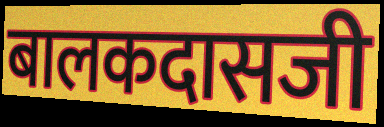
बालकदासजी